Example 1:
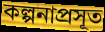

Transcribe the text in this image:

কল্পনাপ্ৰসূত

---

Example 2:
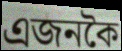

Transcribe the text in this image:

এজনকৈ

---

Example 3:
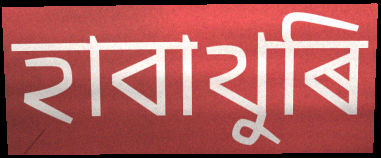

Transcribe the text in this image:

হাবাথুৰি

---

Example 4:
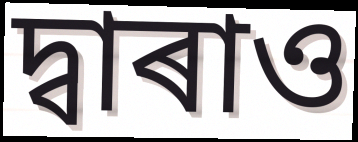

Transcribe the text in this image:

দ্বাৰাও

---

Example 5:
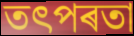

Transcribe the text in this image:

তৎপৰতা